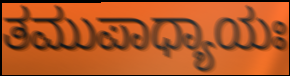
ತಮುಪಾಧ್ಯಾಯಃ